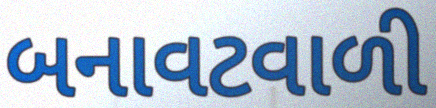
બનાવટવાળી